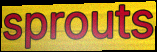
sprouts